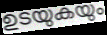
ഉടയുകയും